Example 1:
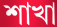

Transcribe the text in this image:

শাখা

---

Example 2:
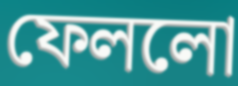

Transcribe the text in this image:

ফেললো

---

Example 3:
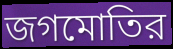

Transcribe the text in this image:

জগমোতির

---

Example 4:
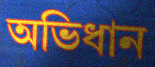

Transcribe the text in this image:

অভিধান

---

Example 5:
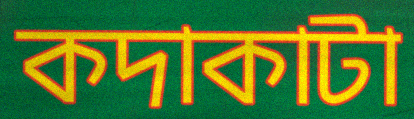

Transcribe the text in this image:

কদাকাটা